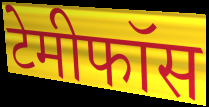
टेमीफॉस